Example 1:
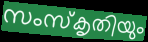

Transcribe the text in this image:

സംസ്കൃതിയും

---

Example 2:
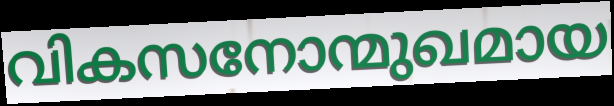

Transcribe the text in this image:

വികസനോന്മുഖമായ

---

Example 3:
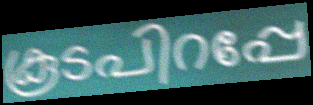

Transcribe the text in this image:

കൂടപിറപ്പേ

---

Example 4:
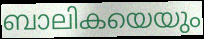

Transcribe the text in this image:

ബാലികയെയും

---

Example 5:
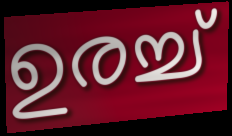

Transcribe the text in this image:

ഉരച്ച്